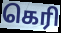
கெரி